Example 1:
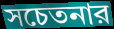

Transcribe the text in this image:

সচেতনার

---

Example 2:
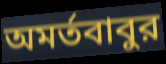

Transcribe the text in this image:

অমর্তবাবুর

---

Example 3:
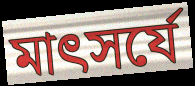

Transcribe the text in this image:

মাৎসর্যে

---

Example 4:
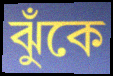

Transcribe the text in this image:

ঝুঁকে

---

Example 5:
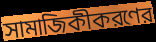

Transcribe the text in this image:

সামাজিকীকরণের